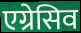
एग्रेसिव